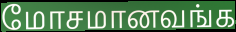
மோசமானவங்க